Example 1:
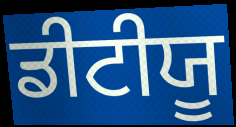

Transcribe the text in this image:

ਡੀਟੀਯੂ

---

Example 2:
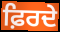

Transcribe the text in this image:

ਫ਼ਿਰਦੇ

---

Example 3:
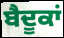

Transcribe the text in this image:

ਬੈਦੂਕਾਂ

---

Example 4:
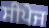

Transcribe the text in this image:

ਸੀਪੇਜ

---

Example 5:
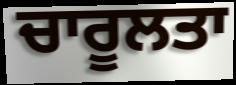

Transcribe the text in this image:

ਚਾਰੂਲਤਾ